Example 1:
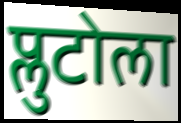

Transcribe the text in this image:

प्लुटोला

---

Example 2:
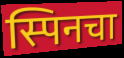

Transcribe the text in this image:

स्पिनचा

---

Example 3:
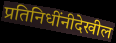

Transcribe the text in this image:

प्रतिनिधींनीदेखील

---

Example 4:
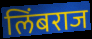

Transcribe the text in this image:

लिंबराज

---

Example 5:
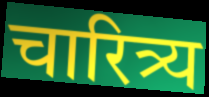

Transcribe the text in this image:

चारित्र्य